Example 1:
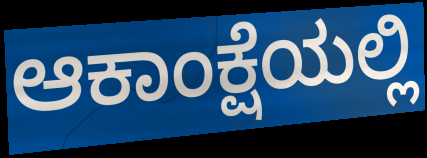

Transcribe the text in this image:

ಆಕಾಂಕ್ಷೆಯಲ್ಲಿ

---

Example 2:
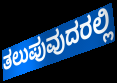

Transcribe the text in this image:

ತಲುಪುವುದರಲ್ಲಿ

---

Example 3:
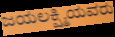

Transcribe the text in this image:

ಜಯಲಕ್ಷ್ಮಿಯವರು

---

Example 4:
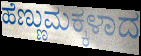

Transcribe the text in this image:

ಹೆಣ್ಣುಮಕ್ಕಳಾದ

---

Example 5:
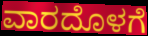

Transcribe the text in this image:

ವಾರದೊಳಗೆ